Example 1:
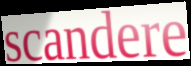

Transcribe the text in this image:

scandere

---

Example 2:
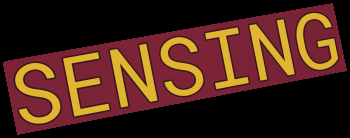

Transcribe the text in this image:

SENSING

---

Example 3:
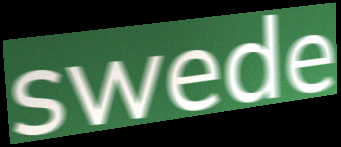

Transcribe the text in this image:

swede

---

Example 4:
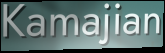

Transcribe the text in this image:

Kamajian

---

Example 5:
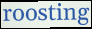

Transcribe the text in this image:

roosting